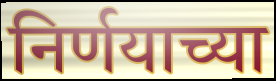
निर्णयाच्या